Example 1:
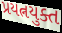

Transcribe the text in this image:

પ્રયત્નયુક્ત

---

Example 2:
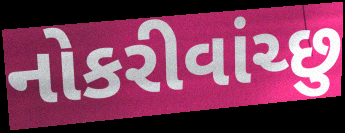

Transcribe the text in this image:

નોકરીવાંચ્છુ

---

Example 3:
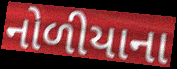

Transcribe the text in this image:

નોળીયાના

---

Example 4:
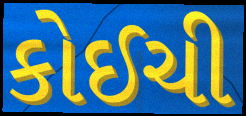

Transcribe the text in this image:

કોઈચી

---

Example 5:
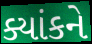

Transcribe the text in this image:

ક્યાંકને